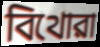
বিথোৱা